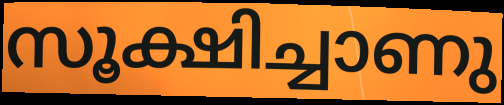
സൂക്ഷിച്ചാണു